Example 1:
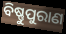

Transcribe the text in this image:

ବିଷ୍ଣୁପୁରାଣ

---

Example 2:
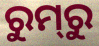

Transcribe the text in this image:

ରୁମ୍‌ରୁ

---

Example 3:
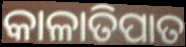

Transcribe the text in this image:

କାଳାତିପାତ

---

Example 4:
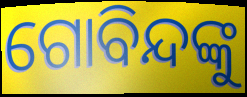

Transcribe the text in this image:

ଗୋବିନ୍ଦଙ୍କୁ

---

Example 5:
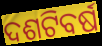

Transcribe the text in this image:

ଦଶଟିବର୍ଷ